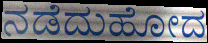
ನಡೆದುಹೋದ